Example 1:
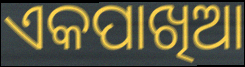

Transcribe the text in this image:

ଏକପାଖିଆ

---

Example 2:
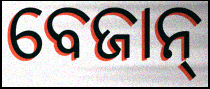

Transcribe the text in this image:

ବେଜାନ୍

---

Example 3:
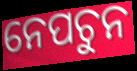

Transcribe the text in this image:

ନେପଚୁନ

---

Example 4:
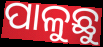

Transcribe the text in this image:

ପାଳୁଛୁ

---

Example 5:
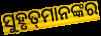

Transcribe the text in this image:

ସୁହୃତ୍‌ମାନଙ୍କର